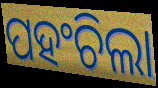
ପହଂଚିଲା